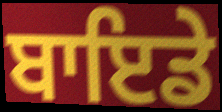
ਬਾਇਡੇ